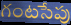
గంటసేపు